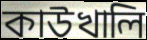
কাউখালি